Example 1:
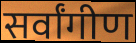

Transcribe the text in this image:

सर्वांगीण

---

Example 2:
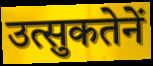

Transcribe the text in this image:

उत्सुकतेनें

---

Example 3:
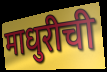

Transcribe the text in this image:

माधुरीची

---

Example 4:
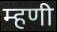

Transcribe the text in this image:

म्हणी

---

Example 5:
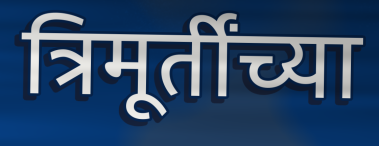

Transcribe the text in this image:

त्रिमूर्तींच्या